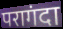
परागंदा